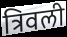
त्रिवली